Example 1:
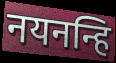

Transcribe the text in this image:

नयनन्हि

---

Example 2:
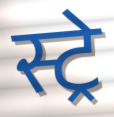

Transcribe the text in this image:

स्ट्रे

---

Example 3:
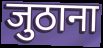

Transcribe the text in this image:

जुठाना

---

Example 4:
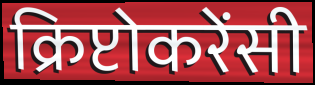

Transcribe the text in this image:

क्रिप्टोकरेंसी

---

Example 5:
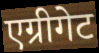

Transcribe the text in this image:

एग्रीगेट